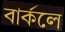
বার্কলে